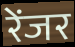
रेंजर